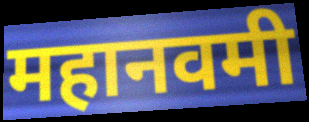
महानवमी